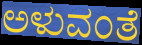
ಅಳುವಂತೆ